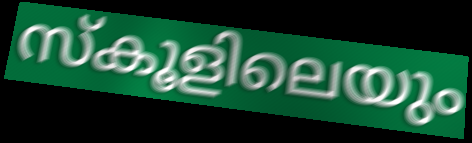
സ്കൂളിലെയും